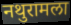
नथुरामला